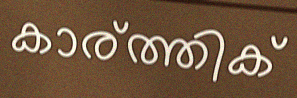
കാര്ത്തിക്